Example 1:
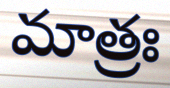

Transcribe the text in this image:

మాత్రః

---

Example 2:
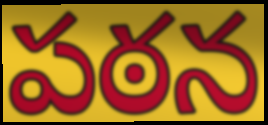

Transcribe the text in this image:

పఠన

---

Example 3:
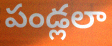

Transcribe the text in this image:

పండ్లలా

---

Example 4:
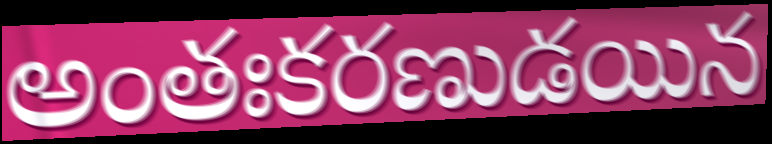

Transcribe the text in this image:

అంతఃకరణుడయిన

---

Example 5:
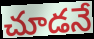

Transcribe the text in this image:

చూడనే